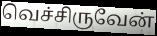
வெச்சிருவேன்